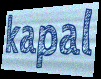
kapal